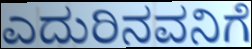
ಎದುರಿನವನಿಗೆ